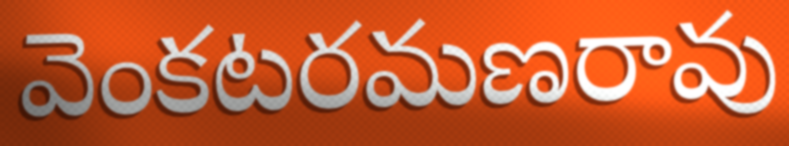
వెంకటరమణరావు